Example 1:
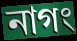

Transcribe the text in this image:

নাগং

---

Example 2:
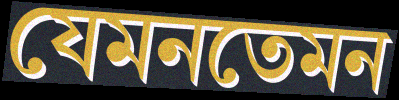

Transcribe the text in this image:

যেমনতেমন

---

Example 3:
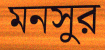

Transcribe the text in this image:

মনসুর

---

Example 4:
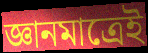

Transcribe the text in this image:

জ্ঞানমাত্রেই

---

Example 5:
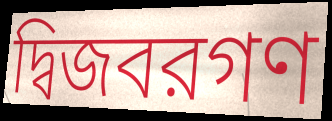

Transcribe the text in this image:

দ্বিজবরগণ